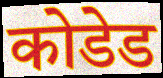
कोडेड